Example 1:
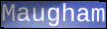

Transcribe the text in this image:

Maugham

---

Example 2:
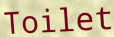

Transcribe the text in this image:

Toilet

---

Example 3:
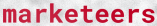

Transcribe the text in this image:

marketeers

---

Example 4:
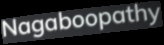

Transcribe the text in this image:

Nagaboopathy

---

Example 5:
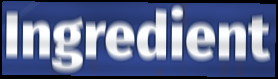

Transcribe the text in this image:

Ingredient